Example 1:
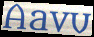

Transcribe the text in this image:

Aavu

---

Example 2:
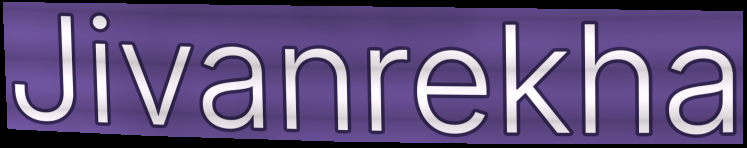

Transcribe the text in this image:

Jivanrekha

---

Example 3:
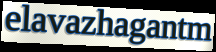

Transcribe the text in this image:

elavazhagantm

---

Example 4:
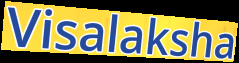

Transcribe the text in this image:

Visalaksha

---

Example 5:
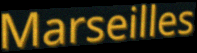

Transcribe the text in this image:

Marseilles